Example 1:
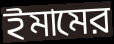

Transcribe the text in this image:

ইমামের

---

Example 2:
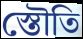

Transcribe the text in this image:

স্তৌতি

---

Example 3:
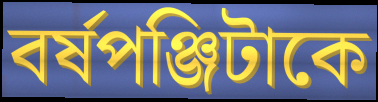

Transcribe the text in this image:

বর্ষপঞ্জিটাকে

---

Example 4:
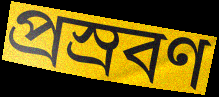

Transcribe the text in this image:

প্রস্রবণ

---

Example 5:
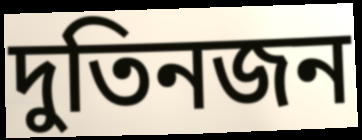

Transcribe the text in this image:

দুতিনজন